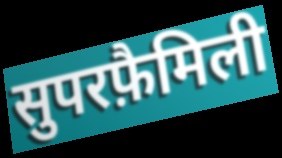
सुपरफ़ैमिली